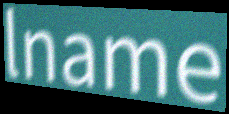
lname